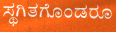
ಸ್ಥಗಿತಗೊಂಡರೂ